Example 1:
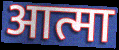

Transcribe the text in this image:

आत्मा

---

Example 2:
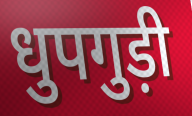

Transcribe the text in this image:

धुपगुड़ी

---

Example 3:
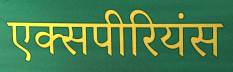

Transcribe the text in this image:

एक्सपीरियंस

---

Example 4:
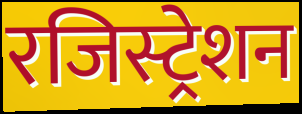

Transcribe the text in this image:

रजिस्‍ट्रेशन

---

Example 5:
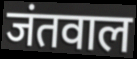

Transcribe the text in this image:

जंतवाल